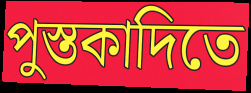
পুস্তকাদিতে